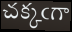
చక్కఁగా